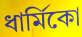
ধার্মিকো